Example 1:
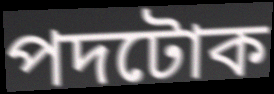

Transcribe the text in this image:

পদটোক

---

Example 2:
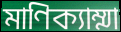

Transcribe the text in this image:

মাণিক্যাম্মা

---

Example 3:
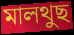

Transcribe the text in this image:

মালথুছ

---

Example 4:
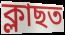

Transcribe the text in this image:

ক্লাছত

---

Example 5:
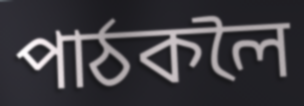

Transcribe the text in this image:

পাঠকলৈ